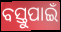
ବସ୍ତୁପାଇଁ